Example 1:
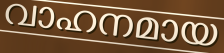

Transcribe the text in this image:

വാഹനമായ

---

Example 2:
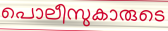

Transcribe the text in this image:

പൊലീസുകാരുടെ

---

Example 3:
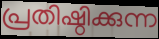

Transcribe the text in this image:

പ്രതിഷ്ഠിക്കുന്ന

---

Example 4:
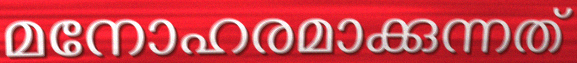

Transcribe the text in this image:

മനോഹരമാക്കുന്നത്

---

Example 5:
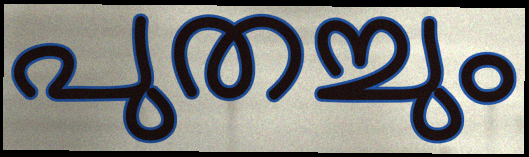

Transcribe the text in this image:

പുതച്ചും